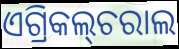
ଏଗ୍ରିକଲ୍‌ଚରାଲ